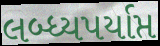
લબ્ધ્યપર્યાપ્ત